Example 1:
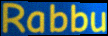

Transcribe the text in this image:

Rabbu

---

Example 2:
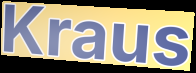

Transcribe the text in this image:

Kraus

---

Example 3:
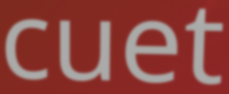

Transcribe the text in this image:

cuet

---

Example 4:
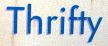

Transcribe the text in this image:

Thrifty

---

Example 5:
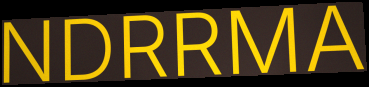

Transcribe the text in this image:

NDRRMA